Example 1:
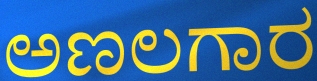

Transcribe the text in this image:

ಅಣಲಗಾರ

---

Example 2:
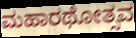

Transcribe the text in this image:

ಮಹಾರಥೋತ್ಸವ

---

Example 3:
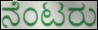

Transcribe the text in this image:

ನೆಂಟರು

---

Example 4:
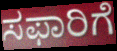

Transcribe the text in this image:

ಸಫಾರಿಗೆ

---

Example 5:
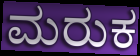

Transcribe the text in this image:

ಮರುಕ